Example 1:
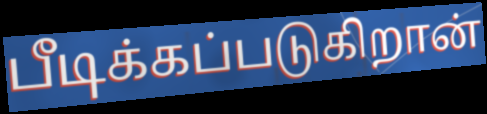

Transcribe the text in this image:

பீடிக்கப்படுகிறான்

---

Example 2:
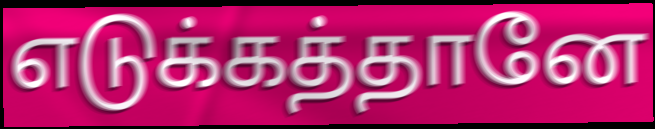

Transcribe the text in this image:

எடுக்கத்தானே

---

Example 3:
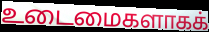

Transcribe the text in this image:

உடைமைகளாகக்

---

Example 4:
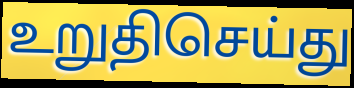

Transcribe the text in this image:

உறுதிசெய்து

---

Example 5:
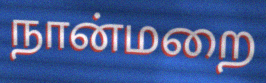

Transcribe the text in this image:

நான்மறை